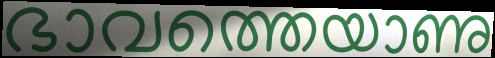
ഭാവത്തെയാണു